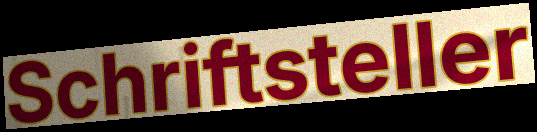
Schriftsteller